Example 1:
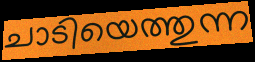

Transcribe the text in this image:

ചാടിയെത്തുന്ന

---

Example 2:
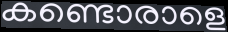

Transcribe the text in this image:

കണ്ടൊരാളെ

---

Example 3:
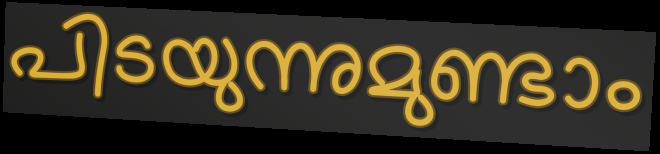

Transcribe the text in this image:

പിടയുന്നുമുണ്ടാം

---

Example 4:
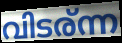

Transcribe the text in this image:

വിടര്ന്ന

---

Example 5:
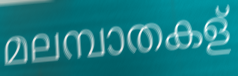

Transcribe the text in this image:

മലമ്പാതകള്